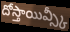
దోస్తాయివ్స్కీ